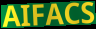
AIFACS